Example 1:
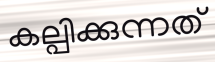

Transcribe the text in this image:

കല്പിക്കുന്നത്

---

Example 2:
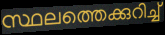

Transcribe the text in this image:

സ്ഥലത്തെക്കുറിച്ച്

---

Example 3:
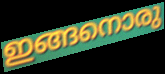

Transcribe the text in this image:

ഇങ്ങനൊരു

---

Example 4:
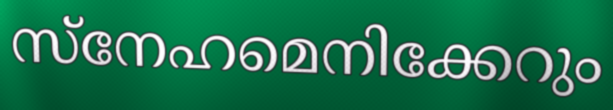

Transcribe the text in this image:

സ്നേഹമെനിക്കേറും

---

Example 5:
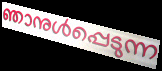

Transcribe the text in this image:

ഞാനുൾപ്പെടുന്ന